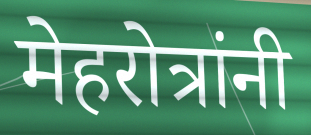
मेहरोत्रांनी